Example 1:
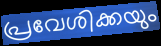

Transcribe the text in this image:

പ്രവേശിക്കയും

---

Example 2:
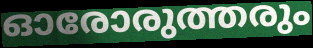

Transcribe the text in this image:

ഓരോരുത്തരും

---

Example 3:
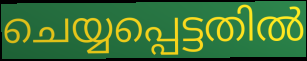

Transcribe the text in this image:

ചെയ്യപ്പെട്ടതിൽ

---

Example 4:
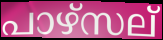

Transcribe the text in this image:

പാഴ്സല്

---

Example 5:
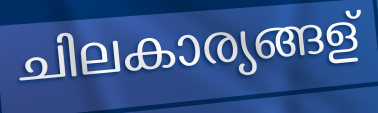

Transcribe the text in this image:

ചിലകാര്യങ്ങള്